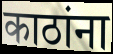
काठांना